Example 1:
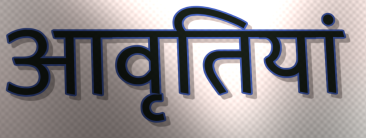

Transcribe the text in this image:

आवृतियां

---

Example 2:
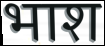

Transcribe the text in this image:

भाश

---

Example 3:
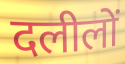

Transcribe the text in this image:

दलीलों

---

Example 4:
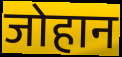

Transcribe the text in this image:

जोहान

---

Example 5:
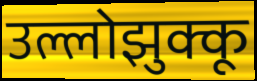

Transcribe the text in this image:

उल्लोझुक्कू